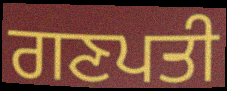
ਗਣਪਤੀ